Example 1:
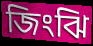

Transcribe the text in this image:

জিংঝি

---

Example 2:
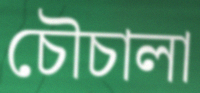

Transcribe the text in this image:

চৌচালা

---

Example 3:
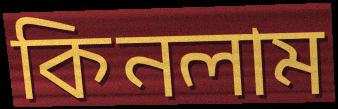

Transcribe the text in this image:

কিনলাম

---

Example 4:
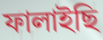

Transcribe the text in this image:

ফালাইছি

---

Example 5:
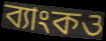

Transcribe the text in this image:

ব্যাংকও